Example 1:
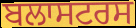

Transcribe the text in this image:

ਬਲਾਸਟਰਸ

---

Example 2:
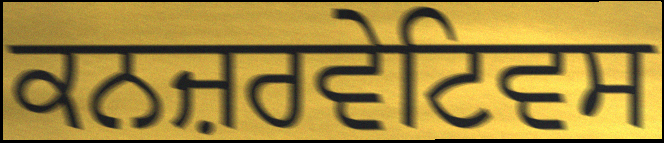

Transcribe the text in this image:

ਕਨਜ਼ਰਵੇਟਿਵਸ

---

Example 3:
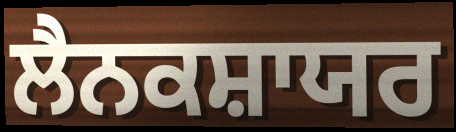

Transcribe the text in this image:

ਲੈਨਕਸ਼ਾਯਰ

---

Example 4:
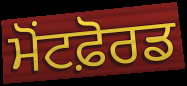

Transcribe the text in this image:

ਮੋਂਟਫ਼ੋਰਡ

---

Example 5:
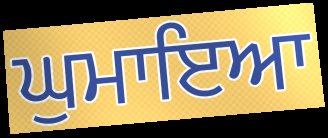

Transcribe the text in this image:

ਘੁਮਾਇਆ